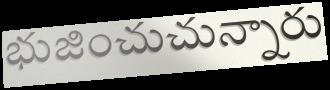
భుజించుచున్నారు